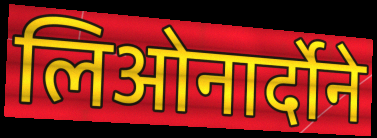
लिओनार्दोने